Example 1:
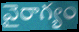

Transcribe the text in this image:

వైరాగ్యం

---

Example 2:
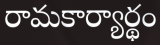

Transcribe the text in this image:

రామకార్యార్థం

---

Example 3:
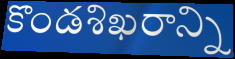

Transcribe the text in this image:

కొండశిఖరాన్ని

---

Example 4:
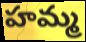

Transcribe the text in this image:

హమ్మ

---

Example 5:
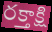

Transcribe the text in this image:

రక్తాక్షి